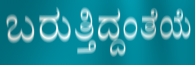
ಬರುತ್ತಿದ್ದಂತೆಯೆ